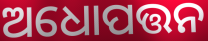
ଅଧୋପତ୍ତନ